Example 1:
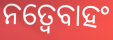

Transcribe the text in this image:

ନତ୍ୱେବାହଂ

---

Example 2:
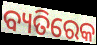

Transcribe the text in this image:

ବ୍ୟତିରେକ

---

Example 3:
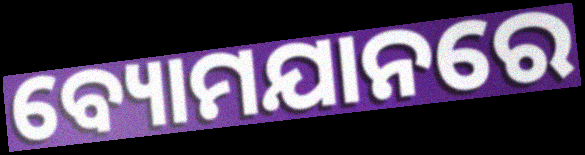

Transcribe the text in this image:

ବ୍ୟୋମଯାନରେ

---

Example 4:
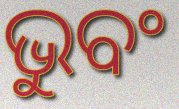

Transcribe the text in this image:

ଭୁବଂ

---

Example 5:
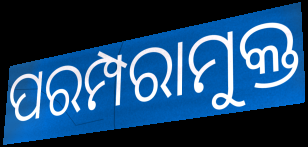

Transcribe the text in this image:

ପରମ୍ପରାମୁକ୍ତ